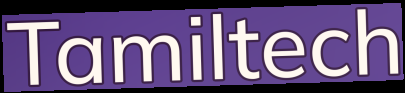
Tamiltech